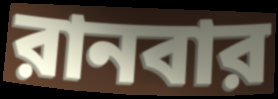
রানবার